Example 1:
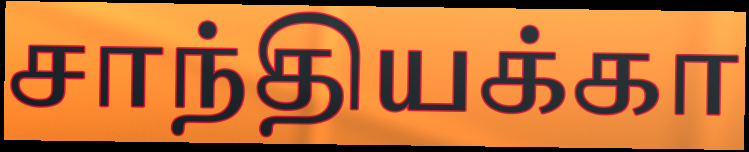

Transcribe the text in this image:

சாந்தியக்கா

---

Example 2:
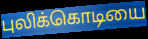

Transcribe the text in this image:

புலிக்கொடியை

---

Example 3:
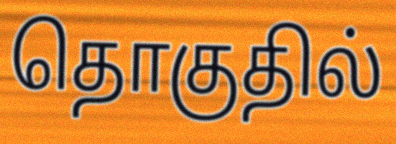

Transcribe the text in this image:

தொகுதில்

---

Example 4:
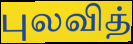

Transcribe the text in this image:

புலவித்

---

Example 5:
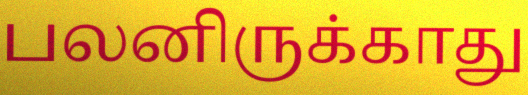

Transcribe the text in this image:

பலனிருக்காது